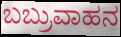
ಬಬ್ರುವಾಹನ